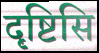
दृष्टिसि